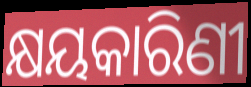
କ୍ଷୟକାରିଣୀ